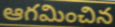
ఆగమించిన